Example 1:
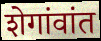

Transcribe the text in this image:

शेगांवांत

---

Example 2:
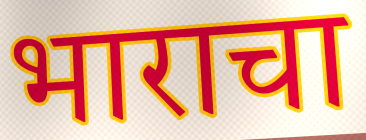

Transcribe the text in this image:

भाराचा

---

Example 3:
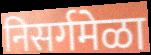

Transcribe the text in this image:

निसर्गमेळा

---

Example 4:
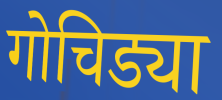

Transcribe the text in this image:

गोचिड्या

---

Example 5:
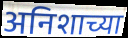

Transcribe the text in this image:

अनिशाच्या